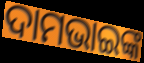
ଦାମଭାଇଙ୍କ